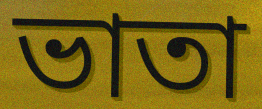
ভাতা